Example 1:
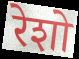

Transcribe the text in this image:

रेशो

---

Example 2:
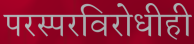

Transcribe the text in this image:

परस्परविरोधीही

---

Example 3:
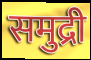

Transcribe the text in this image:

समुद्री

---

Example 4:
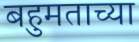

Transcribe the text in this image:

बहुमताच्या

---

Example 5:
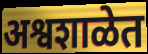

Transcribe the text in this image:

अश्वशाळेत